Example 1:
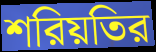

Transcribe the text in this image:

শরিয়তির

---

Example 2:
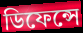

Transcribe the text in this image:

ডিফেন্সে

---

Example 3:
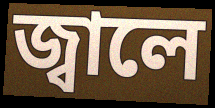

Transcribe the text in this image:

জ্বালে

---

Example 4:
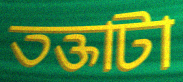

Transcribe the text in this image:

তক্তাটা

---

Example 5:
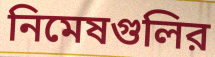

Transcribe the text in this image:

নিমেষগুলির